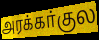
அரக்கர்குல